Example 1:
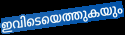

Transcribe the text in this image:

ഇവിടെയെത്തുകയും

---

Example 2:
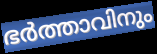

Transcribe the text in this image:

ഭർത്താവിനും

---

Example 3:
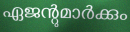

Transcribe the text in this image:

ഏജന്റുമാർക്കും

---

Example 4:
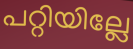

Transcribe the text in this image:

പറ്റിയില്ലേ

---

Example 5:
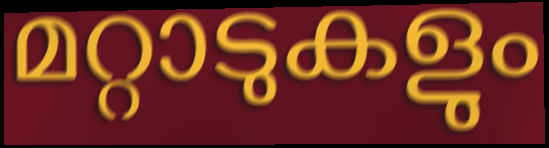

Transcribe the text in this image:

മറ്റാടുകളും